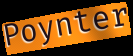
Poynter